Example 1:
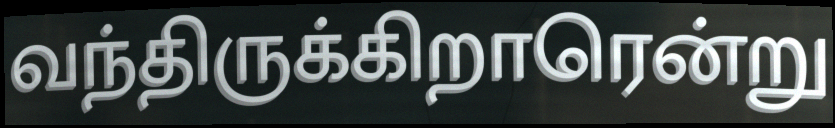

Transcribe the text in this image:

வந்திருக்கிறாரென்று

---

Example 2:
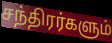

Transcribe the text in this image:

சந்திரர்களும்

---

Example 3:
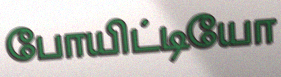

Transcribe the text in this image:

போயிட்டியோ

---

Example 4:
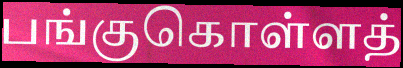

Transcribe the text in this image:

பங்குகொள்ளத்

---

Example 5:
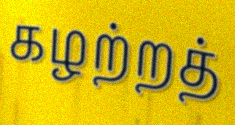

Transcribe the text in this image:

கழற்றத்